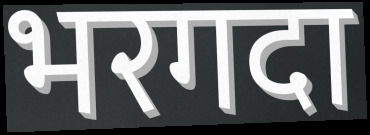
भरगदा